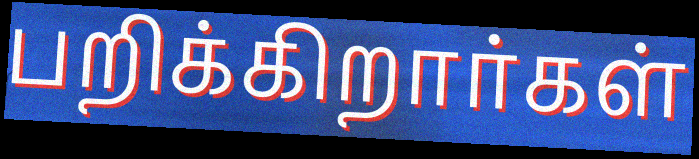
பறிக்கிறார்கள்